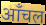
ऑंचल